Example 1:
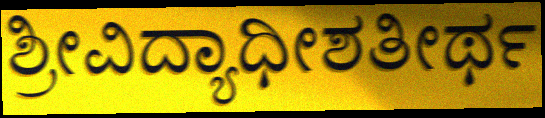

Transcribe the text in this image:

ಶ್ರೀವಿದ್ಯಾಧೀಶತೀರ್ಥ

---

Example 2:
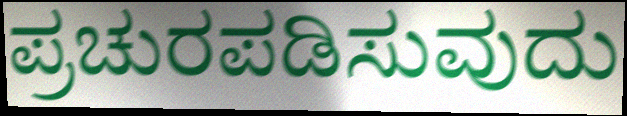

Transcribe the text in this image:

ಪ್ರಚುರಪಡಿಸುವುದು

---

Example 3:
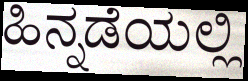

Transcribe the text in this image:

ಹಿನ್ನಡೆಯಲ್ಲಿ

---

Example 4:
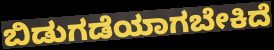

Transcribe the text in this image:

ಬಿಡುಗಡೆಯಾಗಬೇಕಿದೆ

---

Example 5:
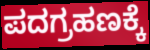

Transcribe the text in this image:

ಪದಗ್ರಹಣಕ್ಕೆ